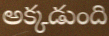
అక్కడుంది